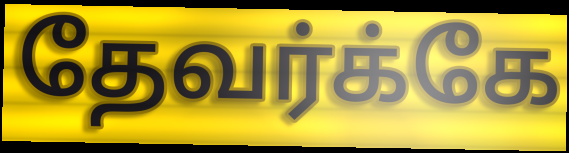
தேவர்க்கே